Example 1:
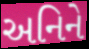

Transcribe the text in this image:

અનિને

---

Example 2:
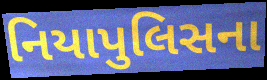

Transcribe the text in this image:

નિયાપુલિસના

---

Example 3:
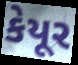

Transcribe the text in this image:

કેયૂર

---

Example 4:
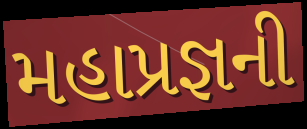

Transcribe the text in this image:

મહાપ્રજ્ઞની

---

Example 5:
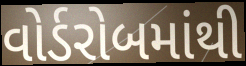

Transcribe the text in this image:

વોર્ડરોબમાંથી